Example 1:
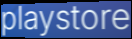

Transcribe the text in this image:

playstore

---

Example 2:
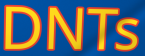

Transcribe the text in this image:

DNTs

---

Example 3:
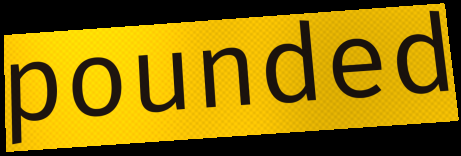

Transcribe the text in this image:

pounded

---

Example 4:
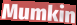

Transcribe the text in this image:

Mumkin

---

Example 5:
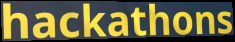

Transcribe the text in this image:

hackathons